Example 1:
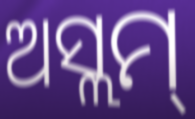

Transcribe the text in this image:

ଅସ୍ଲମ୍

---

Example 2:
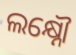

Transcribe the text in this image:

ଲକ୍ଷ୍ନୌ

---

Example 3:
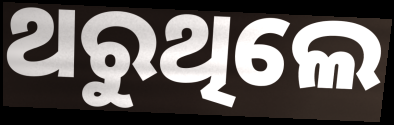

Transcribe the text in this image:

ଥରୁଥିଲେ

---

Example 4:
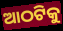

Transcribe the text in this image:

ଆଠଟିକୁ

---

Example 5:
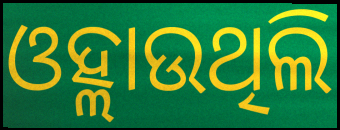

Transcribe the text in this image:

ଓହ୍ଲାଉଥିଲି